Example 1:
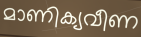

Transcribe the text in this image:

മാണിക്യവീണ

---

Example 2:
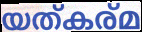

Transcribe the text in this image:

യത്കര്മ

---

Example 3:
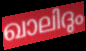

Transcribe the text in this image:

ഖാലിദും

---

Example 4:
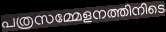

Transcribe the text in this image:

പത്രസമ്മേളനത്തിനിടെ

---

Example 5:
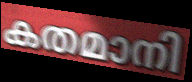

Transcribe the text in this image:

കതമാനി